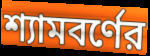
শ্যামবর্ণের